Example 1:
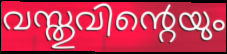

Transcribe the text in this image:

വസ്തുവിന്റെയും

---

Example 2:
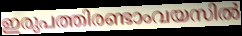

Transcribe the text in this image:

ഇരുപത്തിരണ്ടാംവയസിൽ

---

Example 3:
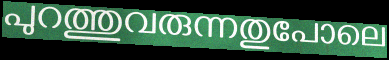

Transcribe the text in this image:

പുറത്തുവരുന്നതുപോലെ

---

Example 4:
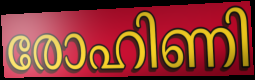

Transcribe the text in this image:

രോഹിണി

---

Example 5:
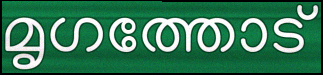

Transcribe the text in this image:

മൃഗത്തോട്